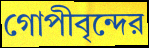
গোপীবৃন্দের